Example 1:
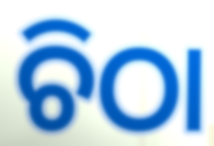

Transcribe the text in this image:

ଚିଠା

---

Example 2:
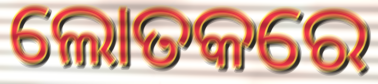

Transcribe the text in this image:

ଲୋତକରେ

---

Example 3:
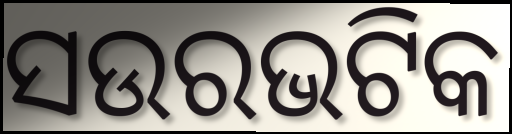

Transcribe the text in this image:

ସଉରଭଟିକ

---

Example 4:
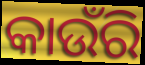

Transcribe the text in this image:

କାଉଁରି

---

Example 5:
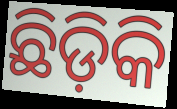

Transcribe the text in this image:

ଛିଡ଼ିକି